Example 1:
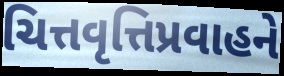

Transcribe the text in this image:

ચિત્તવૃત્તિપ્રવાહને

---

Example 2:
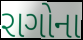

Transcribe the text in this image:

રાગોના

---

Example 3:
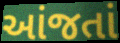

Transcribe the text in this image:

આંજતાં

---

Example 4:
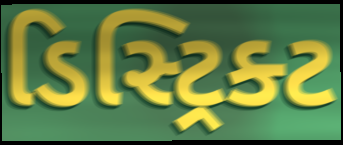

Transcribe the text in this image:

ડિસ્ટ્રિક્ટ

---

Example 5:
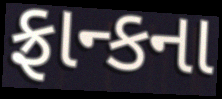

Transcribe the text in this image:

ફ્રાન્કના